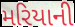
મરિયાની